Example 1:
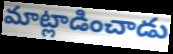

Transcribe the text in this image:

మాట్లాడించాడు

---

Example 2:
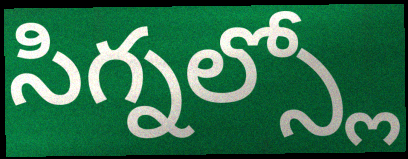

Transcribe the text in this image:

సిగ్నల్స్లో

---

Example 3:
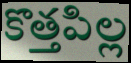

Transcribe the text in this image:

కొత్తపిల్ల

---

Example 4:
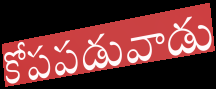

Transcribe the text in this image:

కోపపడువాడు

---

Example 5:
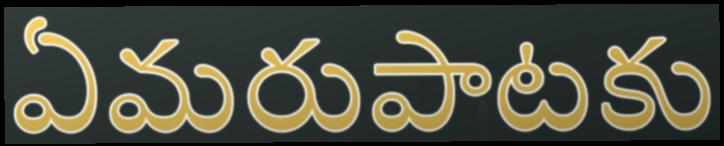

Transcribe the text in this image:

ఏమరుపాటకు